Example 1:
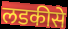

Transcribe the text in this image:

लडकीसे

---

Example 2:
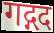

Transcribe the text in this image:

गद्गद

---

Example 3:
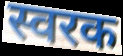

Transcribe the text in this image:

स्वरक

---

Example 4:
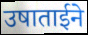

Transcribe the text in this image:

उषाताईने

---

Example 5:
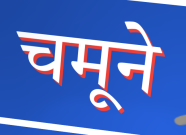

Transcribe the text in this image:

चमूने